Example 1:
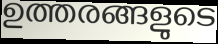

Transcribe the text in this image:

ഉത്തരങ്ങളുടെ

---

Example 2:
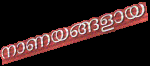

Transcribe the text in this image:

നാണയങ്ങളായ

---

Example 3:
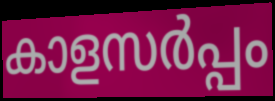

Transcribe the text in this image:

കാളസർപ്പം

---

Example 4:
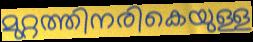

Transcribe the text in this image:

മുറ്റത്തിനരികെയുള്ള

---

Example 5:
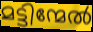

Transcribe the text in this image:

മട്ടിന്മേൽ